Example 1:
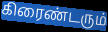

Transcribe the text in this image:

கிரைண்டரும்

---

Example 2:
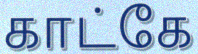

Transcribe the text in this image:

காட்கே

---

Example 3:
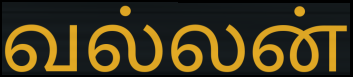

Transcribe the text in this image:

வல்லன்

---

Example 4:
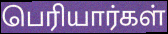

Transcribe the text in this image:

பெரியார்கள்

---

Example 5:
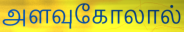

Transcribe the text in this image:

அளவுகோலால்